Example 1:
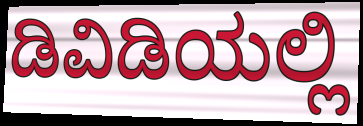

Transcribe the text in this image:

ಡಿವಿಡಿಯಲ್ಲಿ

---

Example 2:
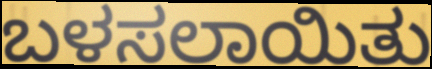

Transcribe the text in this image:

ಬಳಸಲಾಯಿತು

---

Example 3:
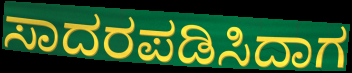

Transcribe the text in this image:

ಸಾದರಪಡಿಸಿದಾಗ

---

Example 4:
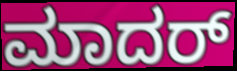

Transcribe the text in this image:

ಮಾದರ್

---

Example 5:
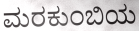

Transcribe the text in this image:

ಮರಕುಂಬಿಯ